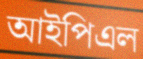
আইপিএল